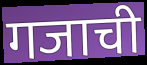
गजाची